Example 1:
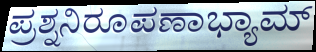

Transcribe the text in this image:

ಪ್ರಶ್ನನಿರೂಪಣಾಭ್ಯಾಮ್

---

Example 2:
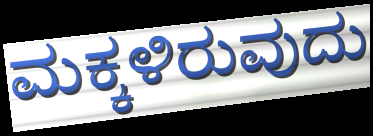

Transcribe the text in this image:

ಮಕ್ಕಳಿರುವುದು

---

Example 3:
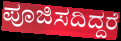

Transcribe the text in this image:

ಪೂಜಿಸದಿದ್ದರೆ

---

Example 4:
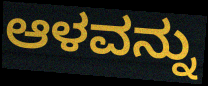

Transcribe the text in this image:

ಆಳವನ್ನು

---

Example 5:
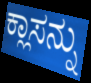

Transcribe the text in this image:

ಕ್ಲಾಸನ್ನು